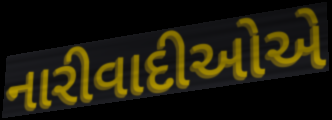
નારીવાદીઓએ